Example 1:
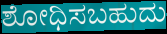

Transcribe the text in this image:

ಶೋಧಿಸಬಹುದು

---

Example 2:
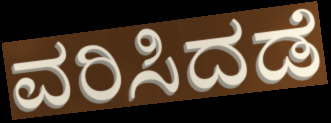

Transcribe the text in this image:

ವರಿಸಿದಡೆ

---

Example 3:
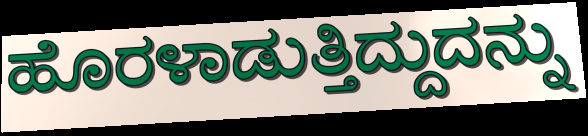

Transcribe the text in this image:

ಹೊರಳಾಡುತ್ತಿದ್ದುದನ್ನು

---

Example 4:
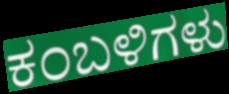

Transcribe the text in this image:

ಕಂಬಳಿಗಳು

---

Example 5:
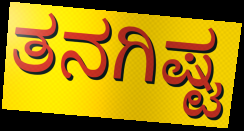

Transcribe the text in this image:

ತನಗಿಷ್ಟ